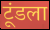
टूंडला